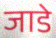
जाडे